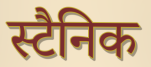
स्टैनिक